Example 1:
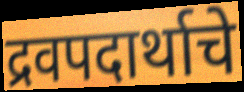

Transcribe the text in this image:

द्रवपदार्थाचे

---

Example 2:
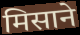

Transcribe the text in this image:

मिसाने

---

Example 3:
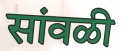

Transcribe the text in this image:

सांवळी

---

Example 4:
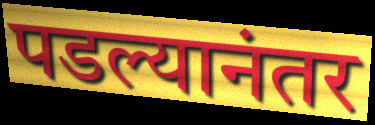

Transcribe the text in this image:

पडल्यानंतर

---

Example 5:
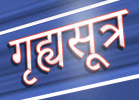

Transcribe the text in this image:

गृह्यसूत्र